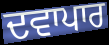
ਦਵਾਪਾਰ